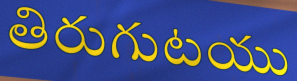
తిరుగుటయు